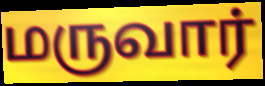
மருவார்